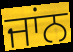
ਜਾਂਨ